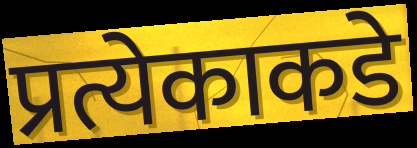
प्रत्येकाकडे